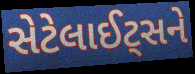
સેટેલાઈટ્સને